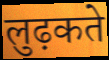
लुढ़कते